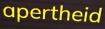
apertheid